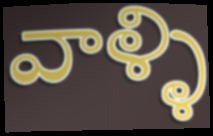
వాళ్ళి